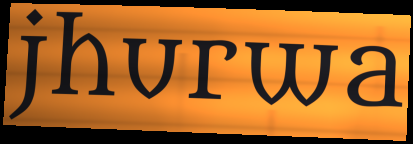
jhurwa